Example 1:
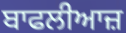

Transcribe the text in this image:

ਬਾਫਲੀਆਜ਼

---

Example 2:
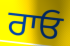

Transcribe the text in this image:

ਰਾਓ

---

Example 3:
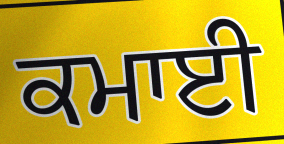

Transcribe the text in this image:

ਕਮਾਈ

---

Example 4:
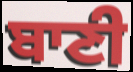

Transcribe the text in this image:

ਬਾਣੀ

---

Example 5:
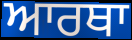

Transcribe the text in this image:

ਆਰਥਾ